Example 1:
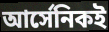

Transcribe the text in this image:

আর্সেনিকই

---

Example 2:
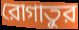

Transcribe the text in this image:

রোগাতুর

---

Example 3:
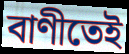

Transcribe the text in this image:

বাণীতেই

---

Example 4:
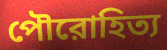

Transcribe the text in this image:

পৌরোহিত্য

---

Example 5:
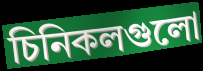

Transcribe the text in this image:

চিনিকলগুলো